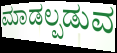
ಮಾಡಲ್ಪಡುವ